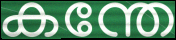
കന്തേ